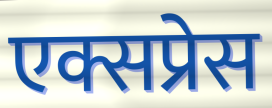
एक्सप्रेस